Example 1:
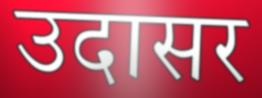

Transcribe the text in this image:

उदासर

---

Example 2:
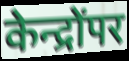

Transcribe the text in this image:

केन्द्रोंपर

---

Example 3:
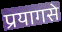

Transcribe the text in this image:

प्रयागसे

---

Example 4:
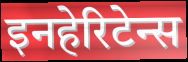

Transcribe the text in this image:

इनहेरिटेन्स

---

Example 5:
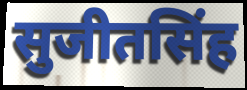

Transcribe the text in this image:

सुजीतसिंह